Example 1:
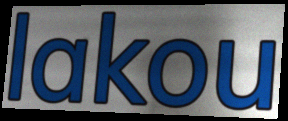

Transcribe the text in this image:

lakou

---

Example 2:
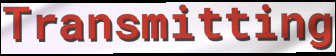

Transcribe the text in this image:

Transmitting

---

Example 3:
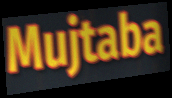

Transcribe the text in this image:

Mujtaba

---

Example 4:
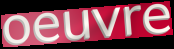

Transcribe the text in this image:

oeuvre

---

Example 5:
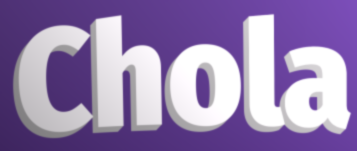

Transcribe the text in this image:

Chola